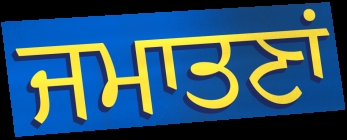
ਜਮਾਤਣਾਂ